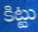
కిట్టు